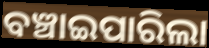
ବଞ୍ଚାଇପାରିଲା